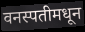
वनस्पतीमधून